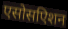
एसोसएिशन